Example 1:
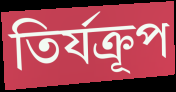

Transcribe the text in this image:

তির্যক্রূপ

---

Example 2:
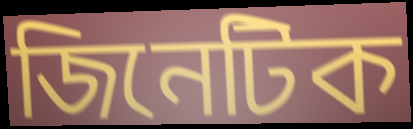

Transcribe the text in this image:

জিনেটিক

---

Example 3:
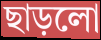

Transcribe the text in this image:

ছাড়লো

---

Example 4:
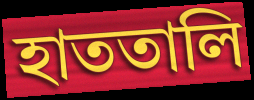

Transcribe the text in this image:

হাততালি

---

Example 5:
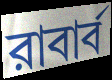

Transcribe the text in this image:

রাবার্ব